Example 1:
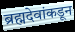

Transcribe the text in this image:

ब्रह्मदेवांकडून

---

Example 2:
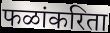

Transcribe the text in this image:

फळांकरिता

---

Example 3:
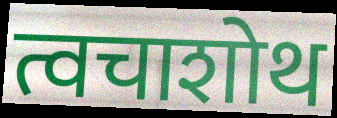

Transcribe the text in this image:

त्वचाशोथ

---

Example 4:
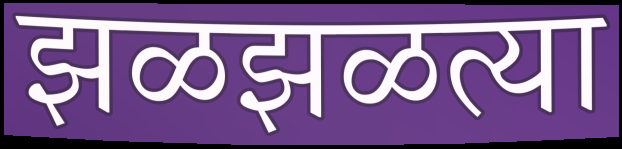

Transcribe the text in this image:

झळझळत्या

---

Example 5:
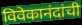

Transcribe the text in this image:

विवेकानंदांची